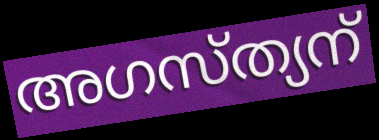
അഗസ്ത്യന്